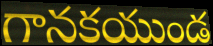
గానకయుండ